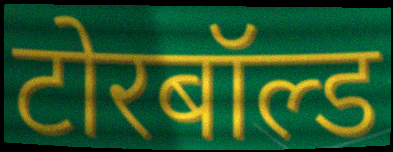
टोरबॉल्ड